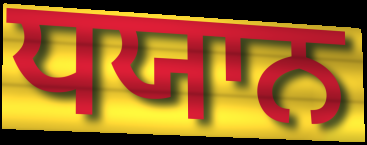
ਧਯਾਨ